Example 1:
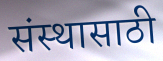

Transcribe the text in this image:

संस्थासाठी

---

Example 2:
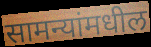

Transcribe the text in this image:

सामन्यांमधील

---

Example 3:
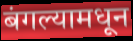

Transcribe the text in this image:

बंगल्यामधून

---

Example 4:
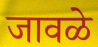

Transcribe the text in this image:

जावळे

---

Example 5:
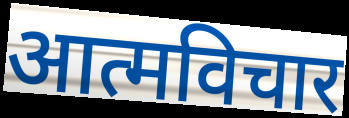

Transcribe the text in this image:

आत्मविचार